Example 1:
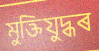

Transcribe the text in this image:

মুক্তিযুদ্ধৰ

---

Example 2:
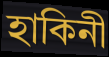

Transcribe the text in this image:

হাকিনী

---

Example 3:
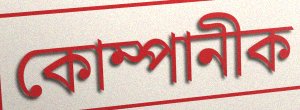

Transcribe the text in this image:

কোম্পানীক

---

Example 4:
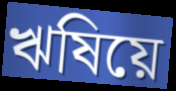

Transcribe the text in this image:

ঋষিয়ে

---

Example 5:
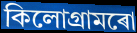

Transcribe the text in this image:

কিলোগ্ৰামৰো